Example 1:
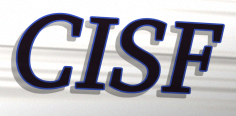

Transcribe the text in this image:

CISF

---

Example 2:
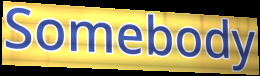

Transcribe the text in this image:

Somebody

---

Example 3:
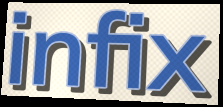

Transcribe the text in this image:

infix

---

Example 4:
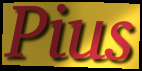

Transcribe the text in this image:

Pius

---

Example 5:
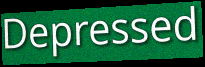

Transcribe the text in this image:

Depressed